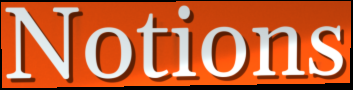
Notions